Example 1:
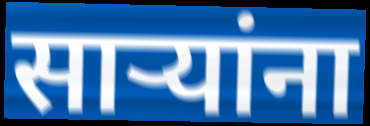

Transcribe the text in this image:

सार्‍यांना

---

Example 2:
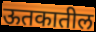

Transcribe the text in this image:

ऊतकातील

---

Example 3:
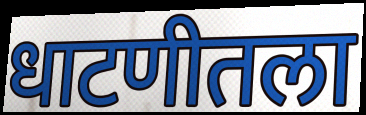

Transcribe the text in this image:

धाटणीतला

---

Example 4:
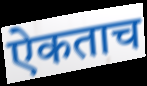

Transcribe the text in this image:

ऐकताच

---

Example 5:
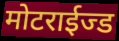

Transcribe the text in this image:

मोटराईज्ड